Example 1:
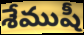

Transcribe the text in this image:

శేముషీ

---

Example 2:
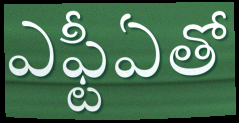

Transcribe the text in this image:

ఎఫ్టీఏతో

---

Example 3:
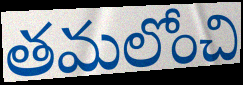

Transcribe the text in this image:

తమలోంచి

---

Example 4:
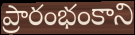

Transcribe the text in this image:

ప్రారంభంకాని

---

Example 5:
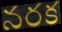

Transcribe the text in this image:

నరక